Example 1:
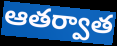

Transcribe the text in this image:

ఆతర్వాత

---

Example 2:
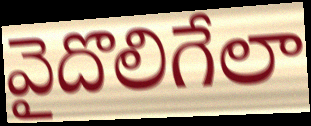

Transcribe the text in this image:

వైదొలిగేలా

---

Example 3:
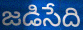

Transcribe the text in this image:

జడిసేది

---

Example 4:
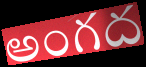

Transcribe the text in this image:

అంగద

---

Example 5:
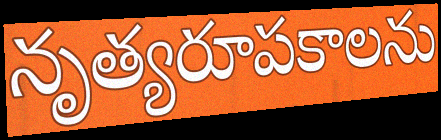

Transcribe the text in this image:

నృత్యరూపకాలను